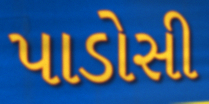
પાડોસી